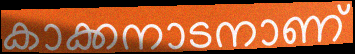
കാക്കനാടനാണ്